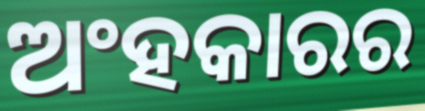
ଅଂହକାରର